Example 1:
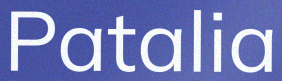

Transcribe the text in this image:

Patalia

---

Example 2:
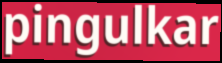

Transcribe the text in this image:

pingulkar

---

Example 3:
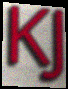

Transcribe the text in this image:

KJ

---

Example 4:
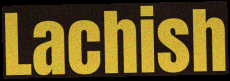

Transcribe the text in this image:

Lachish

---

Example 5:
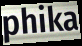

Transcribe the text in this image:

phika